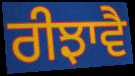
ਰੀਝਾਵੈ